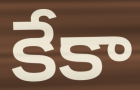
కేకా